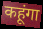
कहूंगा